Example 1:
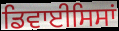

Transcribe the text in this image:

ਡਿਵਾਈਸਿਸਾਂ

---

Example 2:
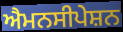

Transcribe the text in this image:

ਐਮਨਸੀਪੇਸ਼ਨ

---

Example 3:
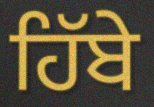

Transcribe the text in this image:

ਹਿੱਬੇ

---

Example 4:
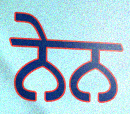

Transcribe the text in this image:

ਨੇਨ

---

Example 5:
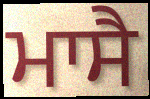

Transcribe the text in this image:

ਮਾਸੈ